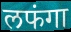
लफंगा